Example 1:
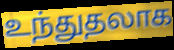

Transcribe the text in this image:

உந்துதலாக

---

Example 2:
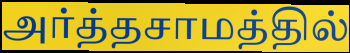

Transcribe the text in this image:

அர்த்தசாமத்தில்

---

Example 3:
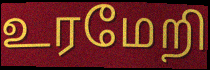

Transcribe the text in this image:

உரமேறி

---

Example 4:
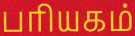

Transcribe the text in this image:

பரியகம்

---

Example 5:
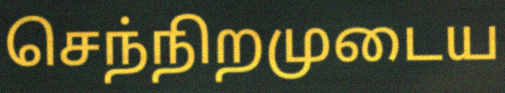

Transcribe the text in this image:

செந்நிறமுடைய